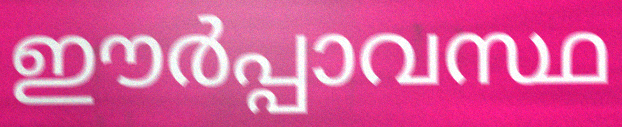
ഈർപ്പാവസ്ഥ